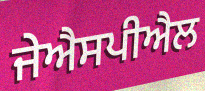
ਜੇਐਸਪੀਐਲ